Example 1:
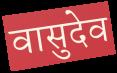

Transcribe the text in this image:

वासुदेव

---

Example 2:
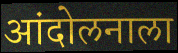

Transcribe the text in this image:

आंदोलनाला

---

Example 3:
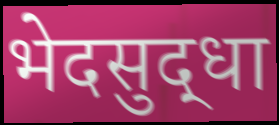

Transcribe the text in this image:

भेदसुद्धा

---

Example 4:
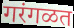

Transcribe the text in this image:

गरंगळत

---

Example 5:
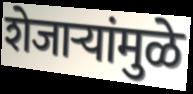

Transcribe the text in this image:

शेजाऱ्यांमुळे